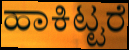
ಹಾಕಿಟ್ಟರೆ